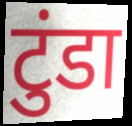
टुंडा